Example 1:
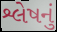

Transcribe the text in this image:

શ્લેષનું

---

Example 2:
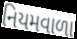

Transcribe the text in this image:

નિયમવાળા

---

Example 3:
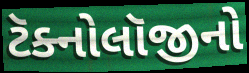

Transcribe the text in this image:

ટૅક્નોલૉજીનો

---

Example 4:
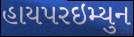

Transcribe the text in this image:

હાયપરઇમ્યુન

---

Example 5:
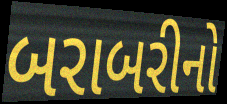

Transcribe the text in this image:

બરાબરીનો